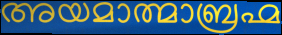
അയമാത്മാബ്രഹ്മ